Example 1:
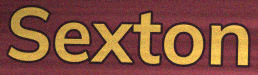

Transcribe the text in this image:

Sexton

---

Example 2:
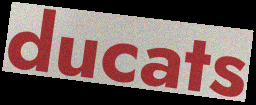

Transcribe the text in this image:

ducats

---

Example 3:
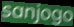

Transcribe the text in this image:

sanjogo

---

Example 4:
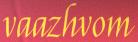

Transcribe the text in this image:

vaazhvom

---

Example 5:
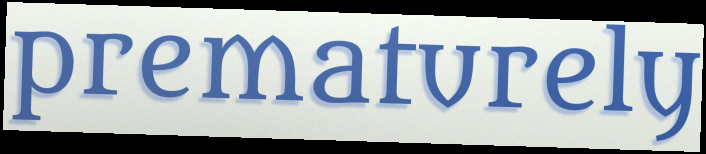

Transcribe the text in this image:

prematurely